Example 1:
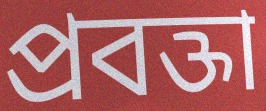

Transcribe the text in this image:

প্ৰবক্তা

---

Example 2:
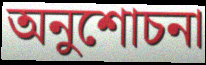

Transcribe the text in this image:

অনুশোচনা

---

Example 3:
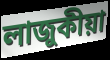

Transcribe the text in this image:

লাজুকীয়া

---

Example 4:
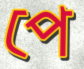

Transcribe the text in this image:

পে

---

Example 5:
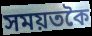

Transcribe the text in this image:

সময়তকৈ